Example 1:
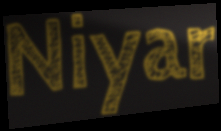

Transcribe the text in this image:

Niyar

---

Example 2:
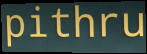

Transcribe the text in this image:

pithru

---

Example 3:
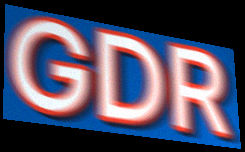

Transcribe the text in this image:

GDR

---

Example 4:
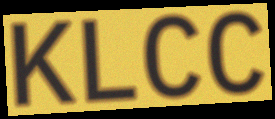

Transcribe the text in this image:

KLCC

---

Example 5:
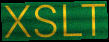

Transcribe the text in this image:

XSLT